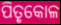
ପିତୃକୋଳ